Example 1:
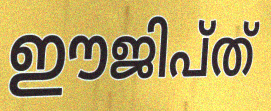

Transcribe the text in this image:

ഈജിപ്ത്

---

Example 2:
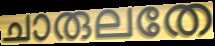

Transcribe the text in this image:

ചാരുലതേ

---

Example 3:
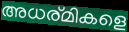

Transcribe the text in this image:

അധര്മികളെ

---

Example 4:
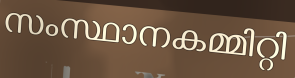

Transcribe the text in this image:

സംസ്ഥാനകമ്മിറ്റി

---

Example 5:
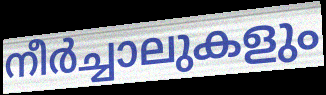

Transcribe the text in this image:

നീർച്ചാലുകളും